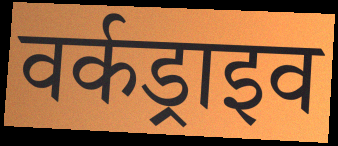
वर्कड्राइव